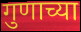
गुणाच्या